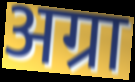
अग्रा